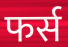
फर्स